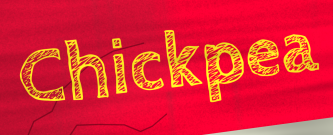
Chickpea